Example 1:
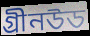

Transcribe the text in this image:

গ্রীনউড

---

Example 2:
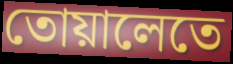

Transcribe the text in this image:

তোয়ালেতে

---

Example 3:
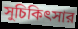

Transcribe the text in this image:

সুচিকিৎসার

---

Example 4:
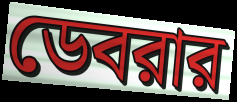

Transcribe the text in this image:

ডেবরার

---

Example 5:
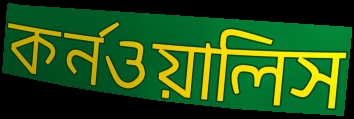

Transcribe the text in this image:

কর্নওয়ালিস